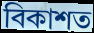
বিকাশত